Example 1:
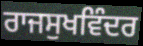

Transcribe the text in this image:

ਰਾਜਸੁਖਵਿੰਦਰ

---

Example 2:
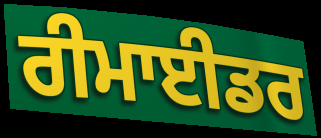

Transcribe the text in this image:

ਰੀਮਾਈਡਰ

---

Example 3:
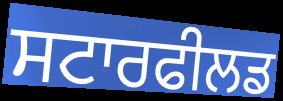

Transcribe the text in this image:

ਸਟਾਰਫੀਲਡ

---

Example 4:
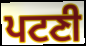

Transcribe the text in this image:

ਪਟਣੀ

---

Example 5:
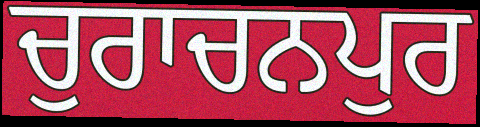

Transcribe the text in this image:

ਚੁਰਾਚਨਪੁਰ